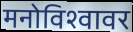
मनोविश्वावर